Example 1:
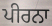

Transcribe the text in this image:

ਪੀਰਨਾ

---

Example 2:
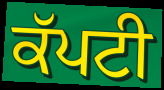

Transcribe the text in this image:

ਕੱਪਟੀ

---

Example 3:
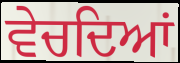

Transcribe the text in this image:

ਵੇਚਦਿਆਂ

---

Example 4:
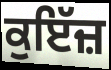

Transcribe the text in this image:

ਕੁਇੱਜ਼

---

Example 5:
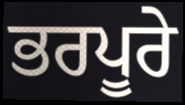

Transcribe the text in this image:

ਭਰਪੂਰੇ